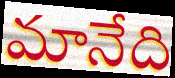
మానేది